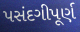
પસંદગીપૂર્ણ